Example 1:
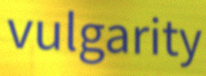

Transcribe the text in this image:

vulgarity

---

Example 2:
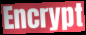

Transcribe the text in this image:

Encrypt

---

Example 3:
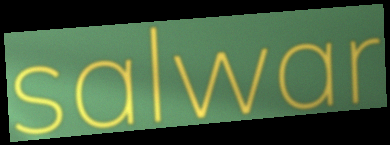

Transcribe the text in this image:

salwar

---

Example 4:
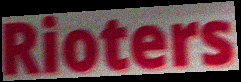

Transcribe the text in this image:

Rioters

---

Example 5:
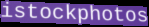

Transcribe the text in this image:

istockphotos